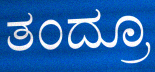
ತಂದ್ರೂ